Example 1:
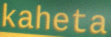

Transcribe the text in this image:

kaheta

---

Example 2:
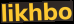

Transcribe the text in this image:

likhbo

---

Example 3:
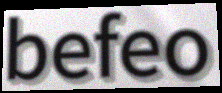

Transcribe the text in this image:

befeo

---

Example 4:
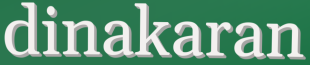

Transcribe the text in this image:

dinakaran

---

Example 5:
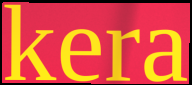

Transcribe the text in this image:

kera